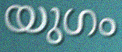
യുഗം